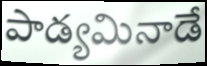
పాడ్యమినాడే